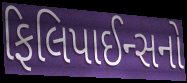
ફિલિપાઈન્સનો